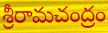
శ్రీరామచంద్రం